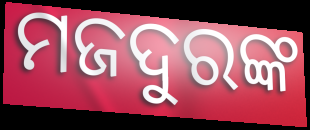
ମଜଦୁରଙ୍କ